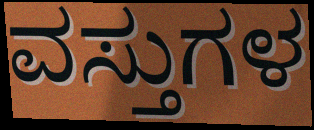
ವಸ್ತುಗಳ